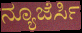
ನ್ಯೂಜೆರ್ಸಿ